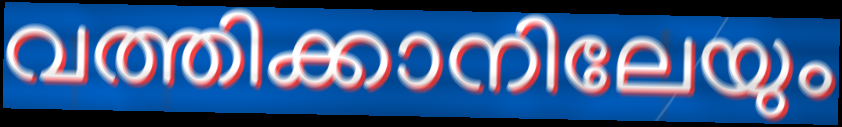
വത്തിക്കാനിലേയും